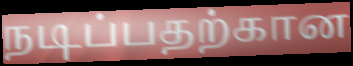
நடிப்பதற்கான